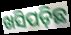
ଖସିପଡ଼ିଛ